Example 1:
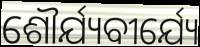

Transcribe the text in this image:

ଶୌର୍ଯ୍ୟବୀର୍ଯ୍ୟେ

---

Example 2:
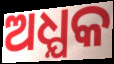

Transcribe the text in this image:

ଅଧ୍ଯକ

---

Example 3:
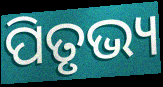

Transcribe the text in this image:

ପିତୃଭ୍ୟ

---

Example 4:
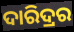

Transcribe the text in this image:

ଦାରିଦ୍ରର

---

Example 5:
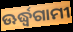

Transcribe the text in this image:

ଊର୍ଦ୍ଧ୍ୱଗାମୀ